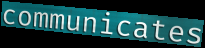
communicates